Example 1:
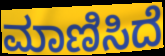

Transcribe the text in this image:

ಮಾಣಿಸಿದೆ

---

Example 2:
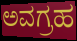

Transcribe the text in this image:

ಅವಗ್ರಹ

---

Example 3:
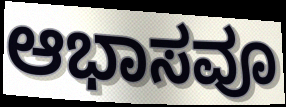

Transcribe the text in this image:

ಆಭಾಸವೂ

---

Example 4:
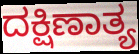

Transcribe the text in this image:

ದಕ್ಷಿಣಾತ್ಯ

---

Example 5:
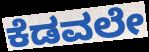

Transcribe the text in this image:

ಕೆಡವಲೇ